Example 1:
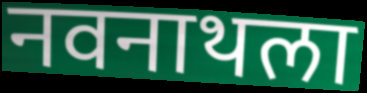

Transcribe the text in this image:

नवनाथला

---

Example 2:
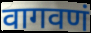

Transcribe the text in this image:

वागवणं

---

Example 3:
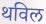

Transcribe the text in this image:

थविल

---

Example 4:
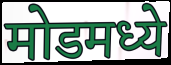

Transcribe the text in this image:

मोडमध्ये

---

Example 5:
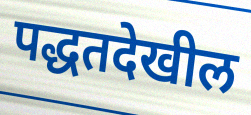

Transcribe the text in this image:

पद्धतदेखील